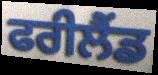
ਫਰੀਲੈਂਡ